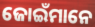
ଜୋଇଁମାନେ